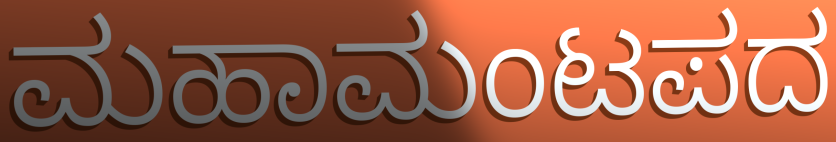
ಮಹಾಮಂಟಪದ